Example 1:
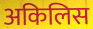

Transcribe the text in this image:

अकिलिस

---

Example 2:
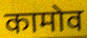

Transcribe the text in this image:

कामोव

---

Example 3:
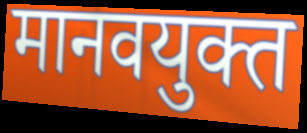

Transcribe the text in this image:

मानवयुक्त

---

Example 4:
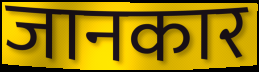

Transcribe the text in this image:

जानकार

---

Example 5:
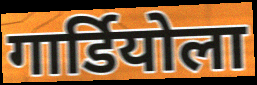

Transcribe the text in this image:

गार्डियोला